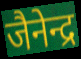
जैनेन्द्र